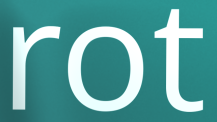
rot